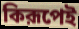
কিরূপেই